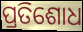
ପ୍ରତିଶୋଧ